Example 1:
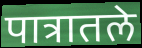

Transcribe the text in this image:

पात्रातले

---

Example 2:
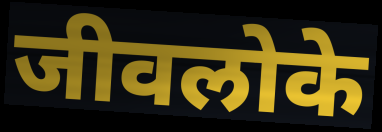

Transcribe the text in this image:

जीवलोके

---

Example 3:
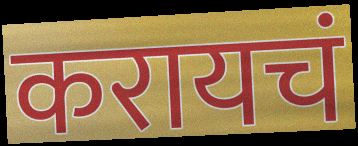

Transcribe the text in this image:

करायचं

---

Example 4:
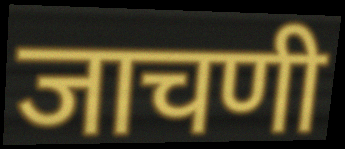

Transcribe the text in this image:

जाचणी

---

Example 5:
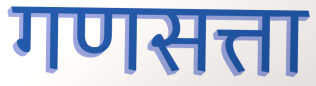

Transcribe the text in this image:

गणसत्ता